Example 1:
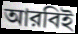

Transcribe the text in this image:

আরবিই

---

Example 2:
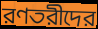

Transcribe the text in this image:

রণতরীদের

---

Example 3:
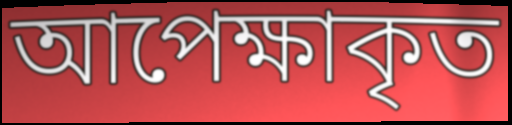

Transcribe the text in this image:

আপেক্ষাকৃত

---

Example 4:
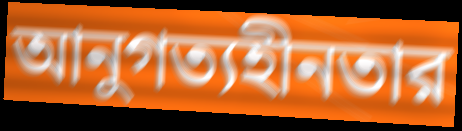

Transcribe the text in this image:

আনুগত্যহীনতার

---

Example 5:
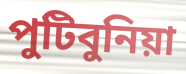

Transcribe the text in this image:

পুটিবুনিয়া